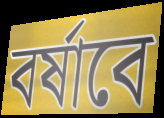
বর্ষাবে